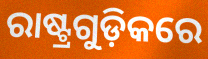
ରାଷ୍ଟ୍ରଗୁଡ଼ିକରେ